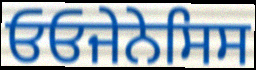
ਓਓਜੇਨੇਸਿਸ